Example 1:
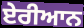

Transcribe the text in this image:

ਏਰੀਆਨ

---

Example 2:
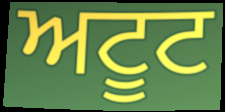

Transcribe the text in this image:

ਅਟੂਟ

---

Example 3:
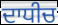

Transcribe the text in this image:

ਦਾਧੀਚ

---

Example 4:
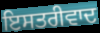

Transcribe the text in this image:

ਇਸਤਰੀਵਾਦ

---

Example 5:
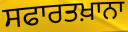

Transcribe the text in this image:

ਸਫਾਰਤਖ਼ਾਨਾ